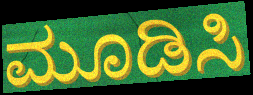
ಮೂಡಿಸಿ